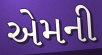
એમની